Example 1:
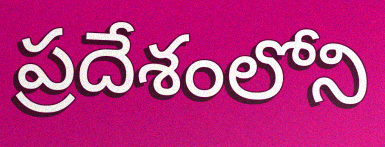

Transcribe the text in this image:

ప్రదేశంలోని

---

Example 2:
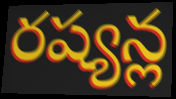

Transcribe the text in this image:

రష్యన్ల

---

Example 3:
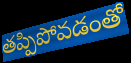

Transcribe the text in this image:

తప్పిపోవడంతో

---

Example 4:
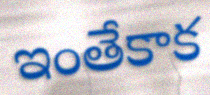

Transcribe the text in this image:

ఇంతేకాక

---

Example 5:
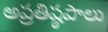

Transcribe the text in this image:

అప్రతిష్ఠపాలు